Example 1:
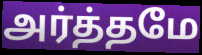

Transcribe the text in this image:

அர்த்தமே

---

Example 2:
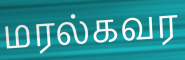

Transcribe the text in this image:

மரல்கவர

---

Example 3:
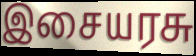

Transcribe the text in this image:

இசையரசு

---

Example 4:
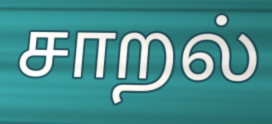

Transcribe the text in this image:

சாறல்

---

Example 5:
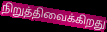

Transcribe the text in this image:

நிறுத்திவைக்கிறது